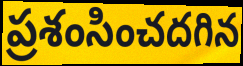
ప్రశంసించదగిన